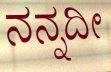
ನನ್ನದೀ